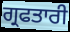
ਗ੍ਰਫਤਾਰੀ